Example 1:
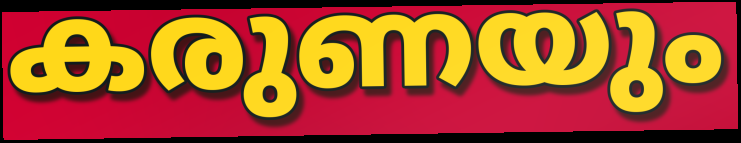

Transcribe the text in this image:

കരുണയും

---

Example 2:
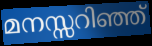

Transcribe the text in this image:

മനസ്സറിഞ്ഞ്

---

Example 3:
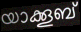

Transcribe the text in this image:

യാക്കൂബ്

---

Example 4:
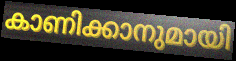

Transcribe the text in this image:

കാണിക്കാനുമായി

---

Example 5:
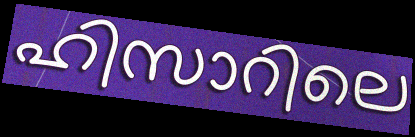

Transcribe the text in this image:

ഹിസാറിലെ